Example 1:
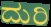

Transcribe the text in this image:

ದುರಿ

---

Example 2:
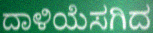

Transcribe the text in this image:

ದಾಳಿಯೆಸಗಿದ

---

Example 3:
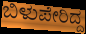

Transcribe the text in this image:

ಬಿಳುಪೇರಿದ್ದ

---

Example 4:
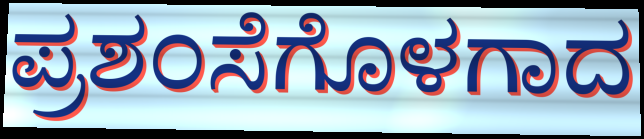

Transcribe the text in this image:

ಪ್ರಶಂಸೆಗೊಳಗಾದ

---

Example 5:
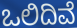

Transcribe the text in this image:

ಒಲಿದಿವೆ